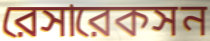
রেসারেকসন